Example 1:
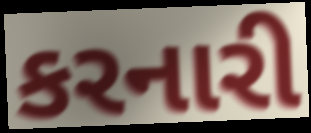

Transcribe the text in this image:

કરનારી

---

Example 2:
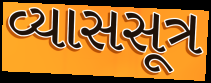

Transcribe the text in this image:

વ્યાસસૂત્ર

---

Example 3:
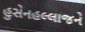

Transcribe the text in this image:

હુસેનહલ્લાજને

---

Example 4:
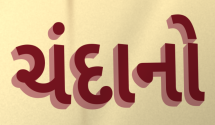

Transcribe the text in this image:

ચંદાનો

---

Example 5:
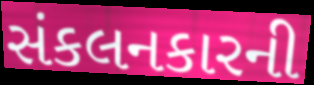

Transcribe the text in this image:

સંકલનકારની